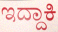
ಇದ್ದಾಕಿ